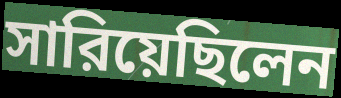
সারিয়েছিলেন